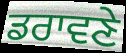
ਡਰਾਵਣੇ